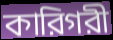
কারিগরী